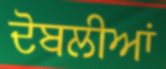
ਦੋਬਲੀਆਂ